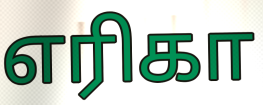
எரிகா